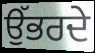
ਉੱਭਰਦੇ